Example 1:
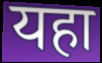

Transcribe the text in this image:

यहा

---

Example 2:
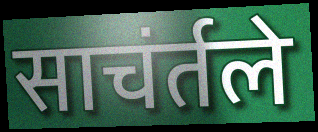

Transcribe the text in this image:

साचंर्तले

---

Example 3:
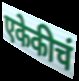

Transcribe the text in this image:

एकेकीचं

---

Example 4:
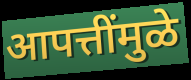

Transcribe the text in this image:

आपत्तींमुळे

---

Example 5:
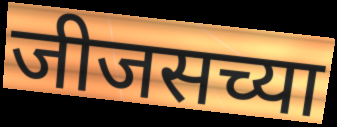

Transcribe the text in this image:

जीजसच्या